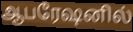
ஆபரேஷனில்